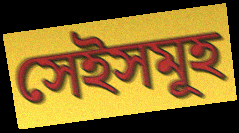
সেইসমূহ